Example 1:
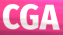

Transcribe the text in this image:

CGA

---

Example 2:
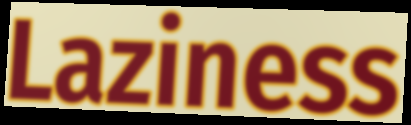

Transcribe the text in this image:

Laziness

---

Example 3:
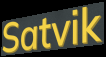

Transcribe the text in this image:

Satvik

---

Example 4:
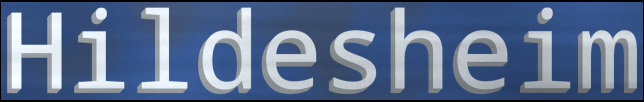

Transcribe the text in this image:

Hildesheim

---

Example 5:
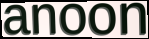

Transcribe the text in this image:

anoon